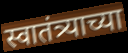
स्वातंत्र्याच्या